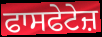
ਫਾਸਫੇਟੇਜ਼